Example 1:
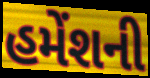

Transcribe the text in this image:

હમેંશની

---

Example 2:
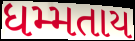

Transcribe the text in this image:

ધમ્મતાય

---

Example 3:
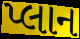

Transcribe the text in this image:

પ્લાન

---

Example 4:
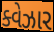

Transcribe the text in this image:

ક્વેઝાર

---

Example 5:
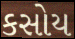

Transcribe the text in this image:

કસોય